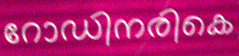
റോഡിനരികെ